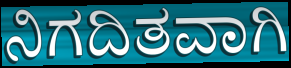
ನಿಗದಿತವಾಗಿ